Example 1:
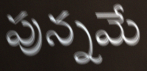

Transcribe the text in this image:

పున్నమే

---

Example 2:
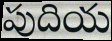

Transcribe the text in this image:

పుదియ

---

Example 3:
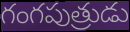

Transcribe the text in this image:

గంగపుత్రుడు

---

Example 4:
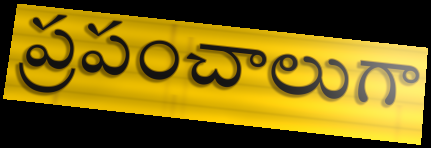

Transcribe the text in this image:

ప్రపంచాలుగా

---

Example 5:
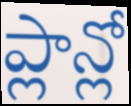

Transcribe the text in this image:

ప్లాన్లో